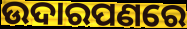
ଉଦାରପଣରେ